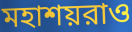
মহাশয়রাও